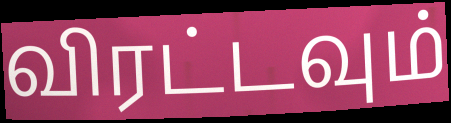
விரட்டவும்